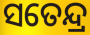
ସତେନ୍ଦ୍ର